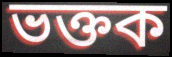
ভক্তক